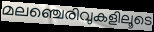
മലഞ്ചെരിവുകളിലൂടെ